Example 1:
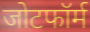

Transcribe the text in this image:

जोटफॉर्म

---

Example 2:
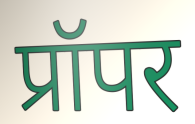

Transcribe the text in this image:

प्रॉपर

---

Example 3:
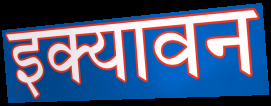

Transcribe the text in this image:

इक्‍यावन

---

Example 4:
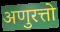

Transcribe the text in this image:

अणुरत्तो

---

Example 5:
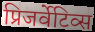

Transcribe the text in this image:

प्रिजर्वेटिव्स